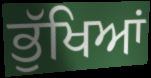
ਭੁੱਖਿਆਂ